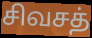
சிவசத்